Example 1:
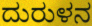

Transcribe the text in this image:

ದುರುಳನ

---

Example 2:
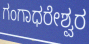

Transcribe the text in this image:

ಗಂಗಾಧರೇಶ್ವರ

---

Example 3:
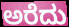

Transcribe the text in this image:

ಅರೆದು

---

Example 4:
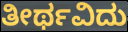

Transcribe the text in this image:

ತೀರ್ಥವಿದು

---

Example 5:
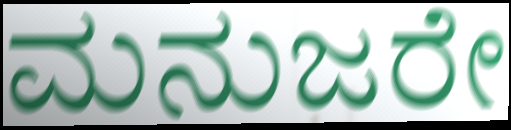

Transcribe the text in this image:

ಮನುಜರೇ